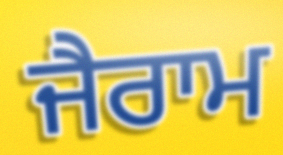
ਜੈਰਾਮ